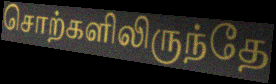
சொற்களிலிருந்தே